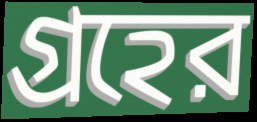
গ্রহের